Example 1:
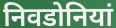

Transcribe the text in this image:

निवडोनियां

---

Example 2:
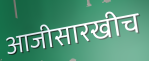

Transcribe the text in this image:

आजीसारखीच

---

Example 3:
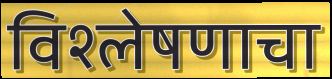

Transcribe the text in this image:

विश्लेषणाचा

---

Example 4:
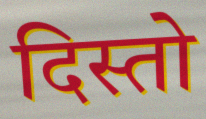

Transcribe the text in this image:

दिस्तो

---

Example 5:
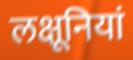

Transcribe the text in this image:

लक्षूनियां